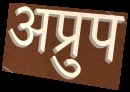
अप्रुप